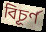
বিচূর্ণ